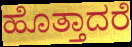
ಹೊತ್ತಾದರೆ